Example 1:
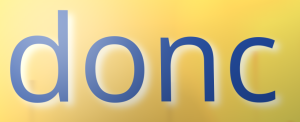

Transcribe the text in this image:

donc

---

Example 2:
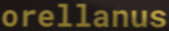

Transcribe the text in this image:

orellanus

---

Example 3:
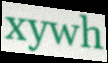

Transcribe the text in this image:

xywh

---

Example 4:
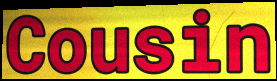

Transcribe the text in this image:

Cousin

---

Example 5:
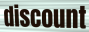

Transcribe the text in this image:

discount